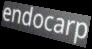
endocarp